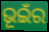
ଭୂଇଁର